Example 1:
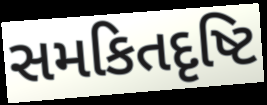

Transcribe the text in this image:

સમકિતદૃષ્ટિ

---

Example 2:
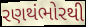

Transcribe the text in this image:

રણથંભોરથી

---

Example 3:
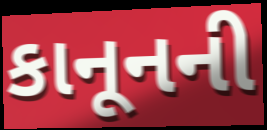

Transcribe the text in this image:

કાનૂનની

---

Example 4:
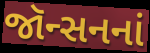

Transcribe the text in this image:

જૉન્સનનાં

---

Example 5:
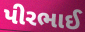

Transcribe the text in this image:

પીરભાઈ